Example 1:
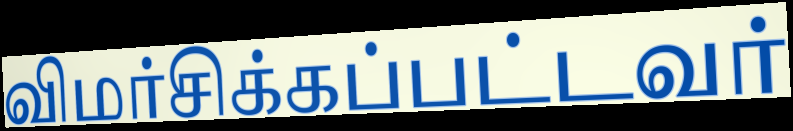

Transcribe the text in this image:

விமர்சிக்கப்பட்டவர்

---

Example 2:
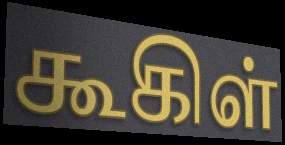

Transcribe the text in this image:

கூகிள்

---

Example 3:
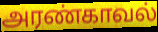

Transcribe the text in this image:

அரண்காவல்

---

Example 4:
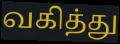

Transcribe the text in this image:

வகித்து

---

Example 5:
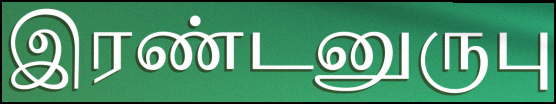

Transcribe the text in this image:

இரண்டனுருபு